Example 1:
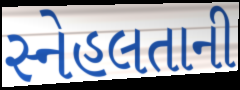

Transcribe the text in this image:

સ્નેહલતાની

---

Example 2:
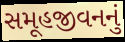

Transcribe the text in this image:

સમૂહજીવનનું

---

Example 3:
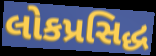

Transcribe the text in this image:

લોકપ્રસિદ્ધ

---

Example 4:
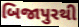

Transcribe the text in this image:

બિજાપુરથી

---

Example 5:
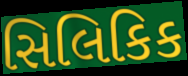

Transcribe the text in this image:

સિલિકિક